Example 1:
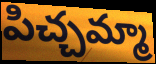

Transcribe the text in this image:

పిచ్చమ్మా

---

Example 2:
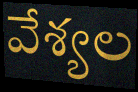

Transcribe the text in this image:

వేశ్యల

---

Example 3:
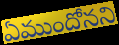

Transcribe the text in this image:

ఏముందోనని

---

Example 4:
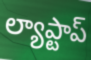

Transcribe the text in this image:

ల్యాప్టాప్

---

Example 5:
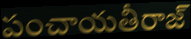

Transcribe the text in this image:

పంచాయతీరాజ్